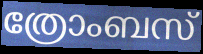
ത്രോംബസ്